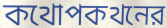
কথোপকথনের